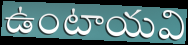
ఉంటాయవి